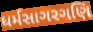
ધર્મસાગરગણિ